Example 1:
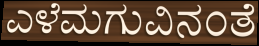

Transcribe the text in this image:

ಎಳೆಮಗುವಿನಂತೆ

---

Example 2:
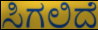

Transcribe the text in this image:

ಸಿಗಲಿದೆ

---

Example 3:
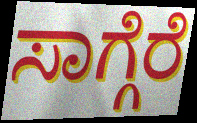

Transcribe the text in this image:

ಸಾಗ್ಗೆರೆ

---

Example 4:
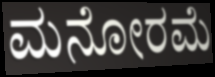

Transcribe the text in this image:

ಮನೋರಮೆ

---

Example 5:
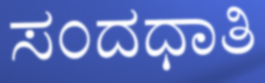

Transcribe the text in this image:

ಸಂದಧಾತಿ